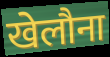
खेलौना